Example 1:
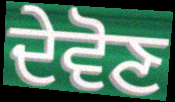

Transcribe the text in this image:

ਦੇਵੋਣ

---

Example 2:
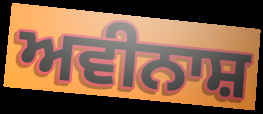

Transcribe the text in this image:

ਅਵੀਨਾਸ਼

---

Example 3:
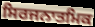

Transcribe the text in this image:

ਸਿਰਜਨਾਤਮਿਕ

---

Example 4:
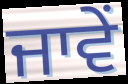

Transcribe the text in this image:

ਜਾਵੇਂ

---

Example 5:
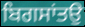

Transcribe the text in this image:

ਬਿਗਸਾਂਤਉ